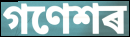
গণেশৰ